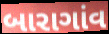
બારાગાંવ